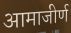
आमाजीर्ण